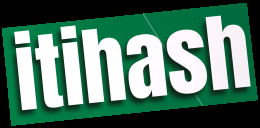
itihash